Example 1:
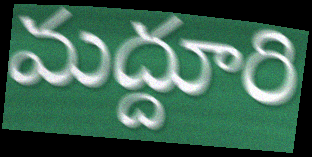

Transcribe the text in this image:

మద్దూరి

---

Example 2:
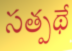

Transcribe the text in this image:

సత్పథే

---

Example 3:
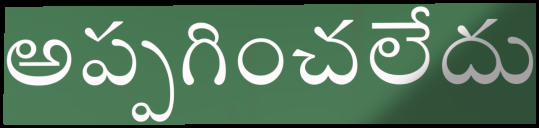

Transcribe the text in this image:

అప్పగించలేదు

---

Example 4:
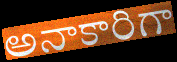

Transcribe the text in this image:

అనాకారిగా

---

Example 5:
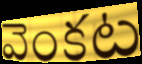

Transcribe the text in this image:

వెంకట